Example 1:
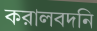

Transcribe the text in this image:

করালবদনি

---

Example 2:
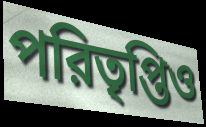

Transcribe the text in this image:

পরিতৃপ্তিও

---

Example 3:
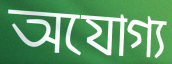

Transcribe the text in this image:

অযোগ্য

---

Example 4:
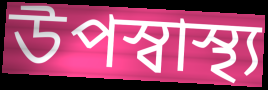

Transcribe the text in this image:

উপস্বাস্থ্য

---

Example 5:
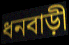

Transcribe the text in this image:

ধনবাড়ী